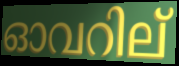
ഓവറില്